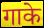
गाके